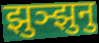
झुञ्झुनु